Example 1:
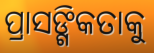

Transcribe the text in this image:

ପ୍ରାସଙ୍ଗିକତାକୁ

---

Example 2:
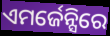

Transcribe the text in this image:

ଏମର୍ଜେନ୍ସିରେ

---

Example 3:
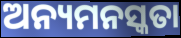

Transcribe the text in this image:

ଅନ୍ୟମନସ୍କତା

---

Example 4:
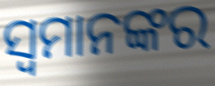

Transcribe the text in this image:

ସ୍ୱମାନଙ୍କର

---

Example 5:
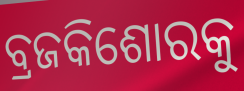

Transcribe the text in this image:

ବ୍ରଜକିଶୋରକୁ